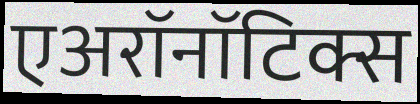
एअरॉनॉटिक्स